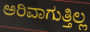
ಅರಿವಾಗುತ್ತಿಲ್ಲ